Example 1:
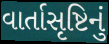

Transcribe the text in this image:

વાર્તાસૃષ્ટિનું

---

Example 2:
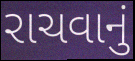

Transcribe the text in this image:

રાચવાનું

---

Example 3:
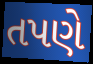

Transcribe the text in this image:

તપણે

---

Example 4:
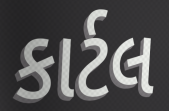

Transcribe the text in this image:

કાર્ટલ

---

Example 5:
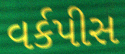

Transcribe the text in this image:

વર્કપીસ